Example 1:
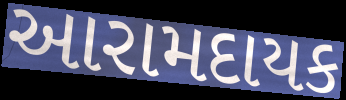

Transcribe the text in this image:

આરામદાયક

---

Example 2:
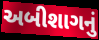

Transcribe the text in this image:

અબીશાગનું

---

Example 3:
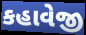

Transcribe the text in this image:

કહાવેજી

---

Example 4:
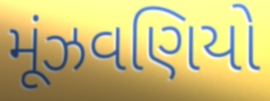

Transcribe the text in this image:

મૂંઝવણિયો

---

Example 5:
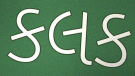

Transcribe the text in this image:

કલક